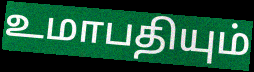
உமாபதியும்